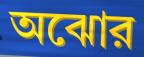
অঝোর